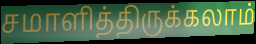
சமாளித்திருக்கலாம்